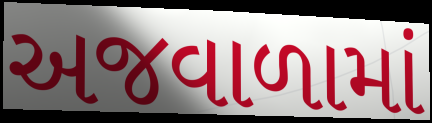
અજવાળામાં